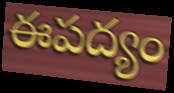
ఈపద్యం